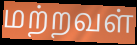
மற்றவள்